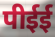
पीईई